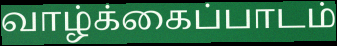
வாழ்க்கைப்பாடம்